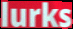
lurks